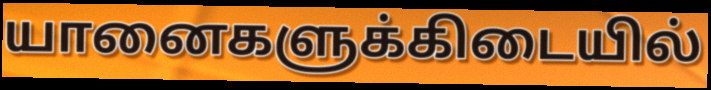
யானைகளுக்கிடையில்